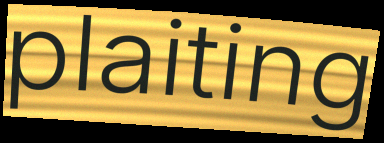
plaiting